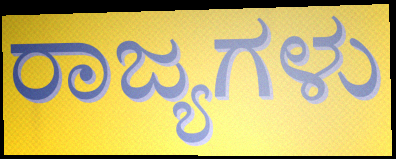
ರಾಜ್ಯಗಳು